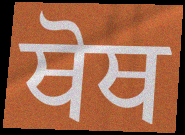
ਥੋਥ